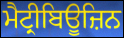
ਮੈਟ੍ਰੀਬਿਊਜ਼ਿਨ